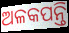
ଅଳକପନ୍ତି